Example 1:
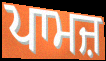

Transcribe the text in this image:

ਪਾਮਜ਼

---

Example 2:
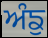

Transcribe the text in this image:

ਅੰਙੁ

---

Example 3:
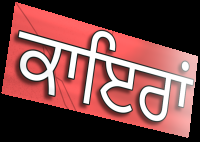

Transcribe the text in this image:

ਕਾਇਰਾਂ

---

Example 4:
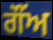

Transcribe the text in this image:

ਗੌਂਅ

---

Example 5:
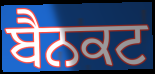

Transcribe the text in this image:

ਬੈਨਕਟ